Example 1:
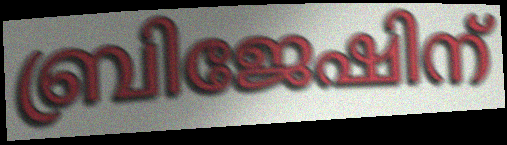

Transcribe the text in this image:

ബ്രിജേഷിന്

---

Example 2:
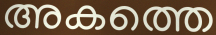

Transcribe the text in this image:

അകത്തെ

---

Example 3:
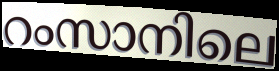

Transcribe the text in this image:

റംസാനിലെ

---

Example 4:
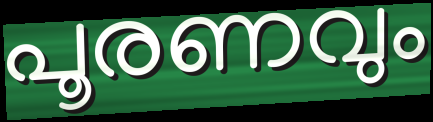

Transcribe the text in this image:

പൂരണവും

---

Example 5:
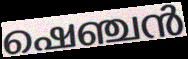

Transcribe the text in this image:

ഷെഞ്ചൻ